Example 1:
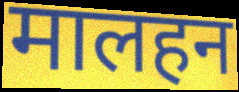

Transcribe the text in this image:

मालहन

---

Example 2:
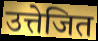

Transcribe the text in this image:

उत्तेजित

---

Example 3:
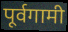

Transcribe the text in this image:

पूर्वगामी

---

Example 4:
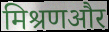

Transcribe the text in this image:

मिश्रणऔर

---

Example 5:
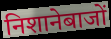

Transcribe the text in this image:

निशानेबाजों